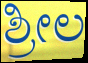
ಶ್ರೀಲ